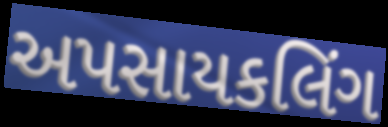
અપસાયકલિંગ